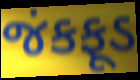
જંકફૂડ